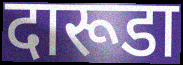
दारूडा